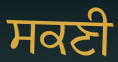
ਸਕਣੀ